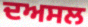
ਦਅਸਲ